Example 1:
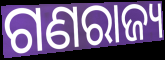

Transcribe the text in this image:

ଗଣରାଜ୍ୟ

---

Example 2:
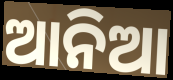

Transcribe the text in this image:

ଆନିଆ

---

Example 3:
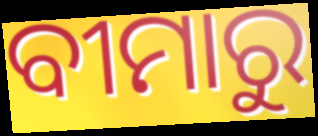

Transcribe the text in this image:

ବୀମାରୁ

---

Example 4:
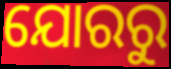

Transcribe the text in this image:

ଯୋରରୁ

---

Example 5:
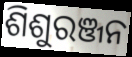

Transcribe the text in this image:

ଶିଶୁରଞ୍ଜନ